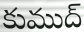
కుముద్